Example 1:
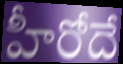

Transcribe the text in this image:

హీరోదే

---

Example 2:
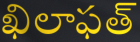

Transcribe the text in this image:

ఖిలాఫత్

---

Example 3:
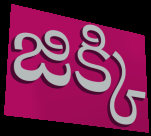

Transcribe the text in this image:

జిక్కి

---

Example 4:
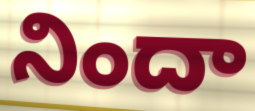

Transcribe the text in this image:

నిందా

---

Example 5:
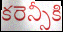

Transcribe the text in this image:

కరెన్సీకి